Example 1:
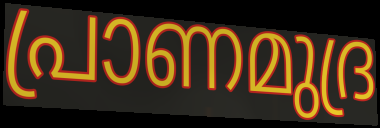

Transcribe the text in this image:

പ്രാണമുദ്ര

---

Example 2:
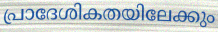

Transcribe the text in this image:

പ്രാദേശികതയിലേക്കും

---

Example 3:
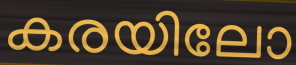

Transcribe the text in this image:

കരയിലോ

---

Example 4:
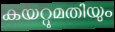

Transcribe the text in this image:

കയറ്റുമതിയും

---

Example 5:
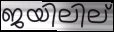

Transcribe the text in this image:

ജയിലില്